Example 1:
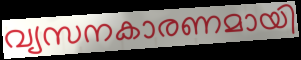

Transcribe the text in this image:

വ്യസനകാരണമായി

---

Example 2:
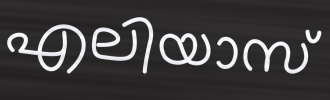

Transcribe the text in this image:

എലിയാസ്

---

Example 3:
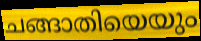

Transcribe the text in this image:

ചങ്ങാതിയെയും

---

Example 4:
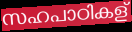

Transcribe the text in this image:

സഹപാഠികള്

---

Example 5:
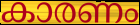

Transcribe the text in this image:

കാരണം